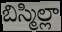
బిస్మిల్లా